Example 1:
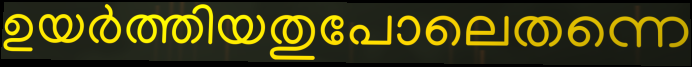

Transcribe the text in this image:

ഉയർത്തിയതുപോലെതന്നെ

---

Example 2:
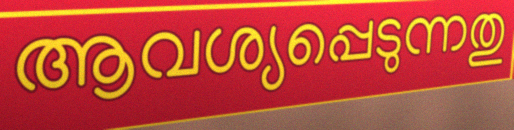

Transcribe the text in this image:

ആവശ്യപ്പെടുന്നതു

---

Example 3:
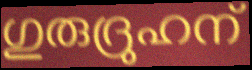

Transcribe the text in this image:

ഗുരുദ്രുഹന്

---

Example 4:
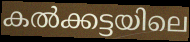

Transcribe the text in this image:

കൽക്കട്ടയിലെ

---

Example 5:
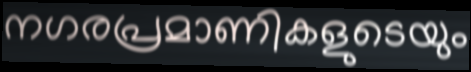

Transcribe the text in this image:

നഗരപ്രമാണികളുടെയും